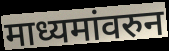
माध्यमांवरुन